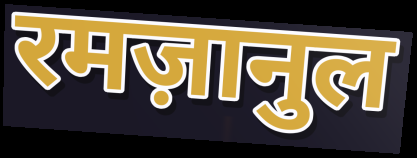
रमज़ानुल